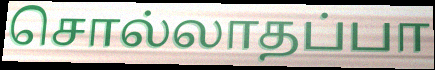
சொல்லாதப்பா